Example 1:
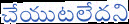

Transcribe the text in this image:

చేయుటలేదని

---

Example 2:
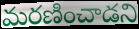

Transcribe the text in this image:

మరణించాడని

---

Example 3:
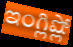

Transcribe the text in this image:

ఇంగ్లిష్లో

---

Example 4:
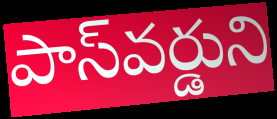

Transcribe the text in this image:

పాస్‌వర్డుని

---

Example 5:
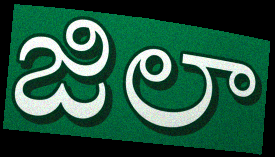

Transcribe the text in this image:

జిలా